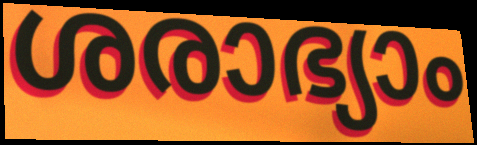
ശരാഭ്യാം